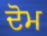
ਦੋਮ